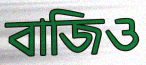
বাজিও